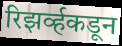
रिझर्व्हकडून